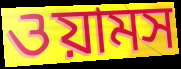
ওয়ামস